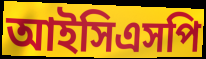
আইসিএসপি